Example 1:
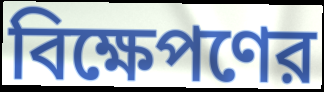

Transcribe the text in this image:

বিক্ষেপণের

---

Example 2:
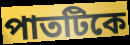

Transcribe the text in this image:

পাতটিকে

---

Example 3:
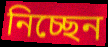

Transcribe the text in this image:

নিচ্ছেন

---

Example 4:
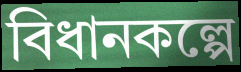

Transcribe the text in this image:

বিধানকল্পে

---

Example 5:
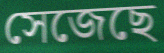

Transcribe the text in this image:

সেজেছে